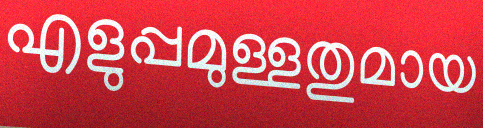
എളുപ്പമുള്ളതുമായ